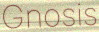
Gnosis